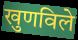
खुणविले